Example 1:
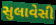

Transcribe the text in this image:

સુલાવેસી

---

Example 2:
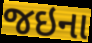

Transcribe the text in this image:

જઇના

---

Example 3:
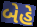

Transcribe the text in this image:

બેહે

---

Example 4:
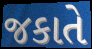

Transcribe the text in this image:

જકાતે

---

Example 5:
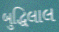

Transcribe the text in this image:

બુદ્ધિલાલ